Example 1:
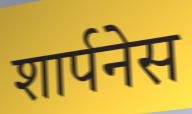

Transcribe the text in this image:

शार्पनेस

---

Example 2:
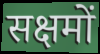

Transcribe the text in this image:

सक्षमों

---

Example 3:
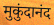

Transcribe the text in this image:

मुकुंदानंद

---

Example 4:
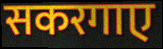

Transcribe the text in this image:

सकरगाए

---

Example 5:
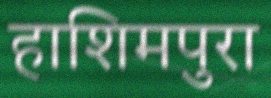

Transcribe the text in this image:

हाशिमपुरा